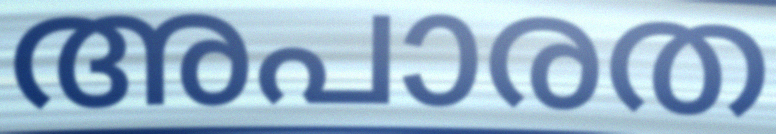
അപാരത